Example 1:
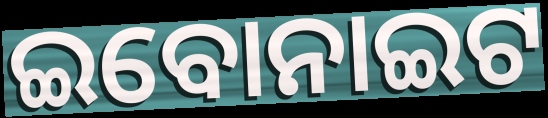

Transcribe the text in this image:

ଇବୋନାଇଟ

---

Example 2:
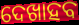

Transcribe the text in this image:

ଦେଖାହବ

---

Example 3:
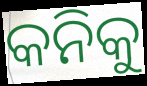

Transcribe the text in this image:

କନିକୁ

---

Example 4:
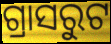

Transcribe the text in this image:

ଗ୍ରାସରୁଟ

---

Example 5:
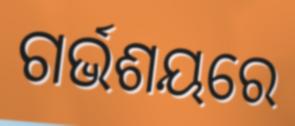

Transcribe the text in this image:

ଗର୍ଭଶୟରେ